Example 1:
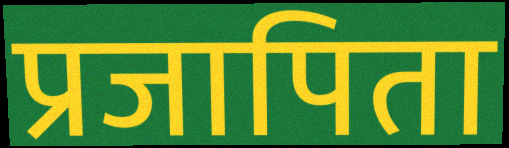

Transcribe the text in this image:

प्रजापिता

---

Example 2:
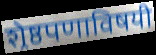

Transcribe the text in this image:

श्रेष्ठपणाविषयी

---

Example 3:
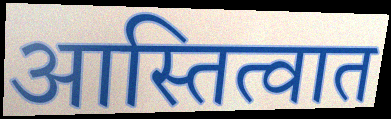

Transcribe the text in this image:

आस्तित्वात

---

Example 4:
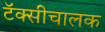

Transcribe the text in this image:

टॅक्सीचालक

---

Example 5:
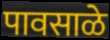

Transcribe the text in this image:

पावसाळे